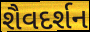
શૈવદર્શન